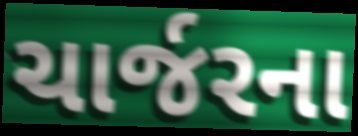
ચાર્જરના